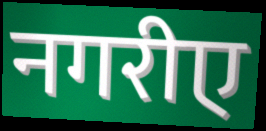
नगरीए